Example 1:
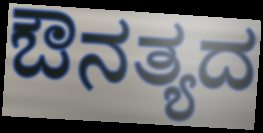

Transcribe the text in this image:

ಔನತ್ಯದ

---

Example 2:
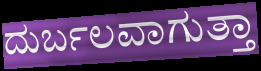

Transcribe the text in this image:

ದುರ್ಬಲವಾಗುತ್ತಾ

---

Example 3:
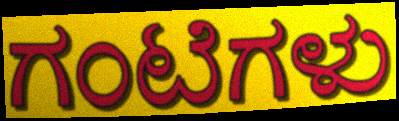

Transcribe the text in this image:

ಗಂಟೆಗಳು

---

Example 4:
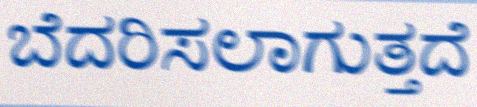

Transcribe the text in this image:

ಬೆದರಿಸಲಾಗುತ್ತದೆ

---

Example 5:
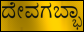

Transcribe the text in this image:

ದೇವಗಬ್ಭಾ